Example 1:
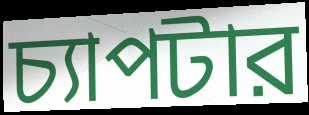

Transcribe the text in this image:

চ্যাপটার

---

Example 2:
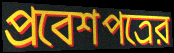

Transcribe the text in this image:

প্রবেশপত্রের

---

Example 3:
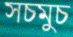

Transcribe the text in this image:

সচমুচ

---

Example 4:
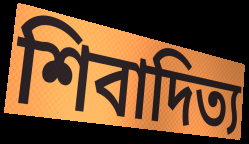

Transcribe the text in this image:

শিবাদিত্য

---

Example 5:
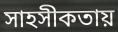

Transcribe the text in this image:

সাহসীকতায়